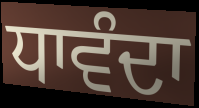
ਧਾਵੰਦਾ